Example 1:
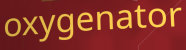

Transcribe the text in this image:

oxygenator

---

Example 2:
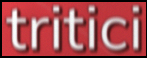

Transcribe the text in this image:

tritici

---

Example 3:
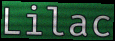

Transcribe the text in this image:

Lilac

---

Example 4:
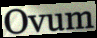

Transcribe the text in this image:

Ovum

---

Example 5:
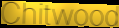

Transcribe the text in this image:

Chitwood